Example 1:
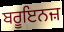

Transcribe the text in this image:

ਬਰੂਇਨਜ਼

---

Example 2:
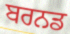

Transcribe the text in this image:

ਬਰਨਡ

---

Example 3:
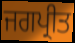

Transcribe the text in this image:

ਜਗਪ੍ਰੀਤ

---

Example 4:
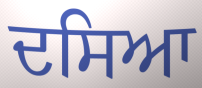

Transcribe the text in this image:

ਦਸਿਆ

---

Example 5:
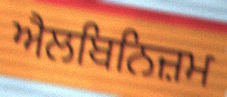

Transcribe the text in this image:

ਐਲਬਿਨਿਜ਼ਮ